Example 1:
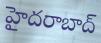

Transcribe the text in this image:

హైదరాబాద్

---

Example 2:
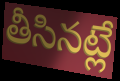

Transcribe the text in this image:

తీసినట్లే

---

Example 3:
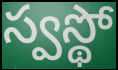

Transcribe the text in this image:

స్వస్థో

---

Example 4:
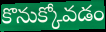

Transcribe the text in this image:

కొనుక్కోవడం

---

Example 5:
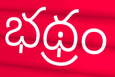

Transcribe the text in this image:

భథ్రం